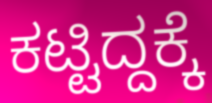
ಕಟ್ಟಿದ್ದಕ್ಕೆ